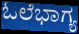
ಓಲೆಭಾಗ್ಯ